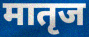
मातृज